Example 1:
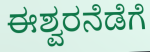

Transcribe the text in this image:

ಈಶ್ವರನೆಡೆಗೆ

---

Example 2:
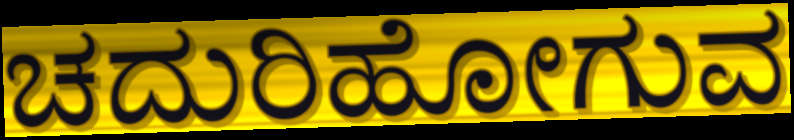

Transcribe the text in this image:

ಚದುರಿಹೋಗುವ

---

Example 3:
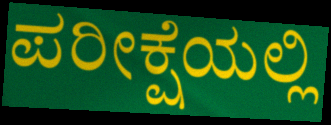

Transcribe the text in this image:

ಪರೀಕ್ಷೆಯಲ್ಲಿ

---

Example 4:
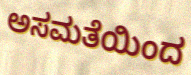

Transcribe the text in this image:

ಅಸಮತೆಯಿಂದ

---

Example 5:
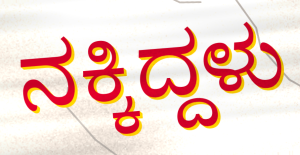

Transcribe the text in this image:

ನಕ್ಕಿದ್ದಳು